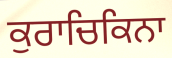
ਕੁਰਾਚਿਕਿਨਾ